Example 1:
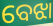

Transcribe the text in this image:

ବେଝା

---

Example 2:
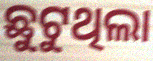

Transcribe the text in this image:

ଛୁଟୁଥିଲା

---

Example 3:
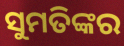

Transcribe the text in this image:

ସୁମତିଙ୍କର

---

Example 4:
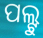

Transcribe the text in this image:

ପଲ୍ଟୁ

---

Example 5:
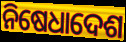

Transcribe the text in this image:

ନିଷେଧାଦେଶ